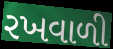
રખવાળી